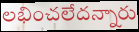
లభించలేదన్నారు